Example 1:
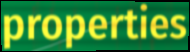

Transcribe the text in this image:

properties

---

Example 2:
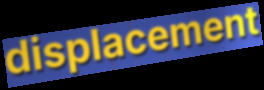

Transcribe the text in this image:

displacement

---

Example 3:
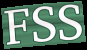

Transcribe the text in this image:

FSS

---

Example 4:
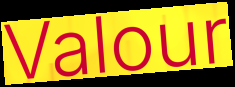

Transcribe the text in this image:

Valour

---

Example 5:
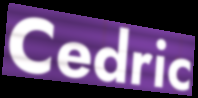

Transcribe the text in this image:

Cedric